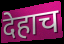
देहाच